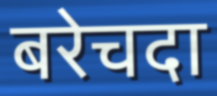
बरेचदा